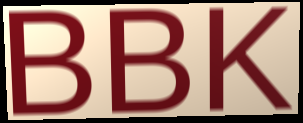
BBK